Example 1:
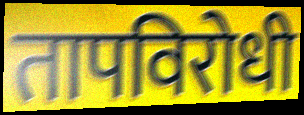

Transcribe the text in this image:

तापविरोधी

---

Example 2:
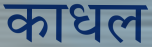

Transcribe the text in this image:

काधल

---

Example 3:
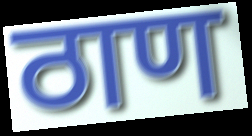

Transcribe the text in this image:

ठाण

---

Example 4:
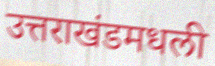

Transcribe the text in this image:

उत्तराखंडमधली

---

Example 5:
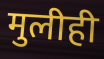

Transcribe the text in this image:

मुलीही